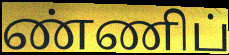
ண்ணிப்